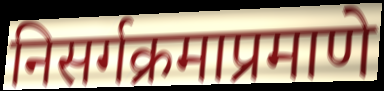
निसर्गक्रमाप्रमाणे